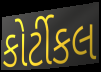
કોર્ટીકલ